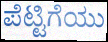
ಪೆಟ್ಟಿಗೆಯು